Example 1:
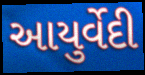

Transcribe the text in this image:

આયુર્વેદી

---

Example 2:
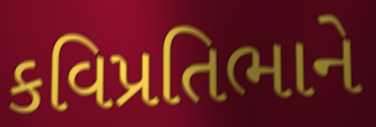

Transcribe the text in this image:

કવિપ્રતિભાને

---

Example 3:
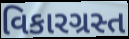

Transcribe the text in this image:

વિકારગ્રસ્ત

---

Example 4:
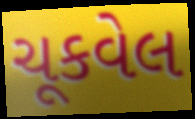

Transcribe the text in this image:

ચૂકવેલ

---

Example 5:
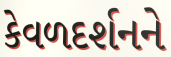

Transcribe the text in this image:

કેવળદર્શનને